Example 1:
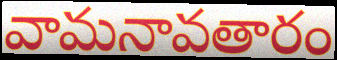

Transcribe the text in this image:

వామనావతారం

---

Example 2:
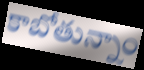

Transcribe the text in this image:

కాబోతున్నాం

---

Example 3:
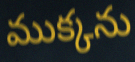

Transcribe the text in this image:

ముక్కను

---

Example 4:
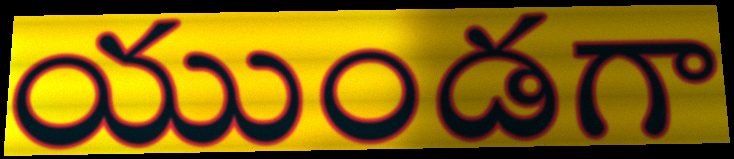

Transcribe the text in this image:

యుండగా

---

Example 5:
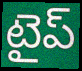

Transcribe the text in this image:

టైప్